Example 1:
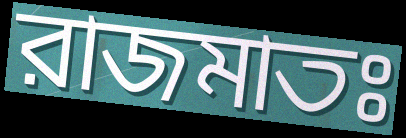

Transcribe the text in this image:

রাজমাতঃ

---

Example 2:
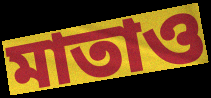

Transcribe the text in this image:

মাতাও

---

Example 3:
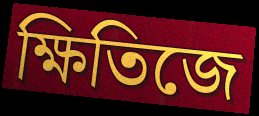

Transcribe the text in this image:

ক্ষিতিজে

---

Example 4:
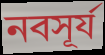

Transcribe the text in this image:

নবসূর্য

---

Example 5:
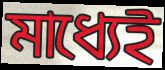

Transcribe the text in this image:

মাধ্যেই